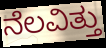
ನೆಲವಿತ್ತು